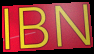
IBN